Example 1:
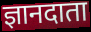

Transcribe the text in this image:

ज्ञानदाता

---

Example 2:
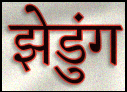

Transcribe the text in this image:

झेडुंग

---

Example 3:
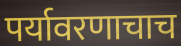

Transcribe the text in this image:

पर्यावरणाचाच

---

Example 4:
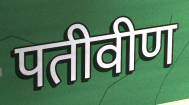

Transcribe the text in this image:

पतीवीण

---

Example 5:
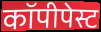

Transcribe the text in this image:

कॉपीपेस्ट